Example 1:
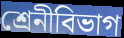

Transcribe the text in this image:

শ্রেনীবিভাগ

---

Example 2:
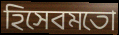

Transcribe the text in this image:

হিসেবমতো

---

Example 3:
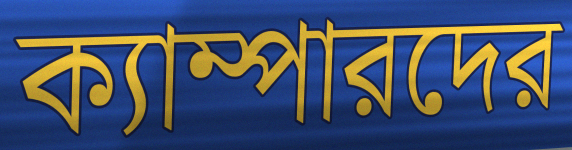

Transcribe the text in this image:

ক্যাম্পারদের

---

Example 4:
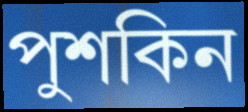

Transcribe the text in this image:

পুশকিন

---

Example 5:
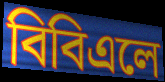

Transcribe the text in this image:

বিবিএলে